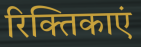
रिक्तिकाएं